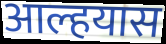
आल्हयास